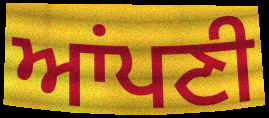
ਆਂਪਣੀ